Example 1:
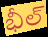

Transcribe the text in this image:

భీల్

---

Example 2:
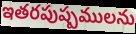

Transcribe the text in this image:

ఇతరపుష్పములను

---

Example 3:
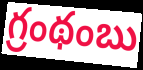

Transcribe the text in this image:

గ్రంథంబు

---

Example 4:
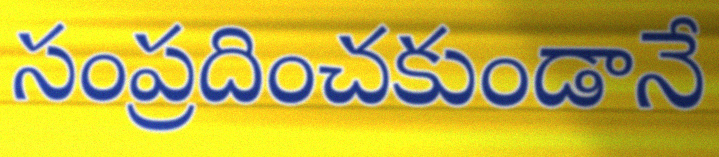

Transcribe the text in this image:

సంప్రదించకుండానే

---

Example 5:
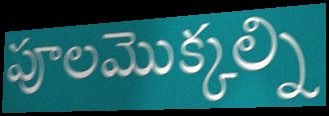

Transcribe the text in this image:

పూలమొక్కల్ని